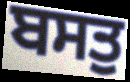
ਬਸਤੁ